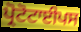
ਪ੍ਰੋਟੋਟਾਈਪਸ